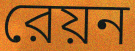
রেয়ন